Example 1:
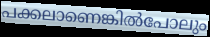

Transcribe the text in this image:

പക്കലാണെങ്കിൽപോലും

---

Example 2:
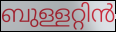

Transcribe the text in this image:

ബുള്ളറ്റിൻ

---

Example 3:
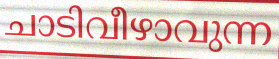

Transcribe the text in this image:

ചാടിവീഴാവുന്ന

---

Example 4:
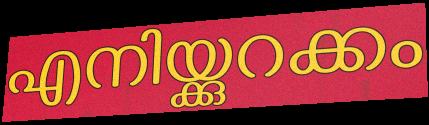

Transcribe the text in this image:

എനിയ്ക്കുറക്കം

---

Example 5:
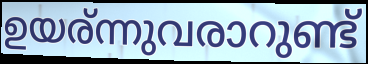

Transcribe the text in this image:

ഉയര്ന്നുവരാറുണ്ട്